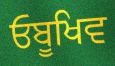
ਓਬੂਖਿਵ